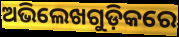
ଅଭିଲେଖଗୁଡ଼ିକରେ